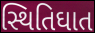
સ્થિતિઘાત